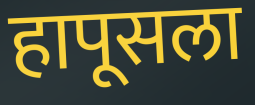
हापूसला